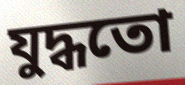
যুদ্ধতো